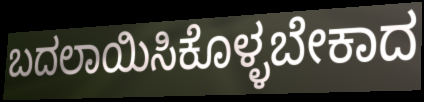
ಬದಲಾಯಿಸಿಕೊಳ್ಳಬೇಕಾದ